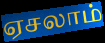
ஏசலாம்